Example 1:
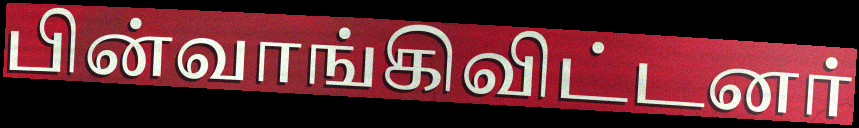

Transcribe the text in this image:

பின்வாங்கிவிட்டனர்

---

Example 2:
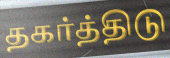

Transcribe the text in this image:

தகர்த்திடு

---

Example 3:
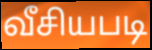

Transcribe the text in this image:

வீசியபடி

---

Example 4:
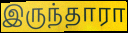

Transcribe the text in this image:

இருந்தாரா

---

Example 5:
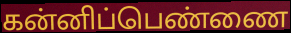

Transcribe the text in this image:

கன்னிப்பெண்ணை